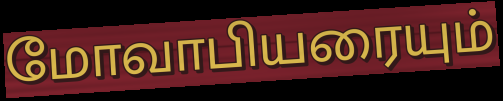
மோவாபியரையும்